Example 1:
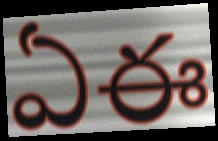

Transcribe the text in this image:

ఏఈ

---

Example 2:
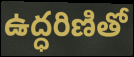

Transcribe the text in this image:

ఉద్ధరిణితో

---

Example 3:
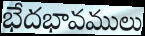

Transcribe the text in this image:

భేదభావములు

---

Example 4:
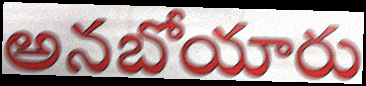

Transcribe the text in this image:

అనబోయారు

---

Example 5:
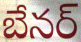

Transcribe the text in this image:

బేనర్